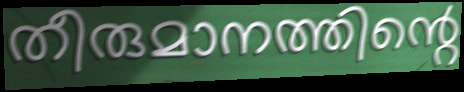
തീരുമാനത്തിന്റെ